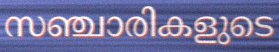
സഞ്ചാരികളുടെ